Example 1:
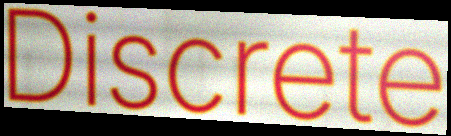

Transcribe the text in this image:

Discrete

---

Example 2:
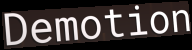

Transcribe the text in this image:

Demotion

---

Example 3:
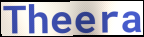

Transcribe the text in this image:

Theera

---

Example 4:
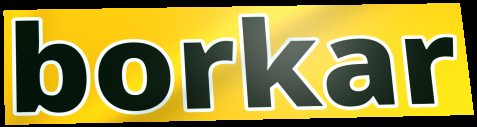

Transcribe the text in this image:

borkar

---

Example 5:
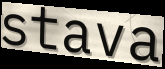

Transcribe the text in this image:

stava